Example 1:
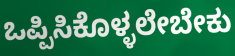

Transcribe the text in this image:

ಒಪ್ಪಿಸಿಕೊಳ್ಳಲೇಬೇಕು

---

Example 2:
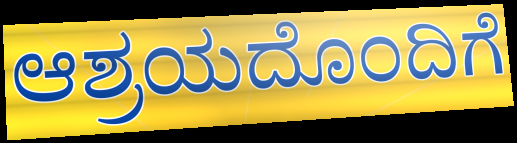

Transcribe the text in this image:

ಆಶ್ರಯದೊಂದಿಗೆ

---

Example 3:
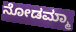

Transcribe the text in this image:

ನೋಡಮ್ಮಾ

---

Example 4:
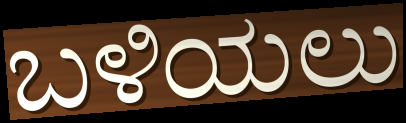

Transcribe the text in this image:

ಬಳಿಯಲು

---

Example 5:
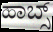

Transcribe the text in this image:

ಹಾಬ್ಸ್